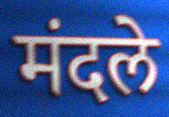
मंदले